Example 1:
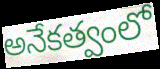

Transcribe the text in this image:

అనేకత్వంలో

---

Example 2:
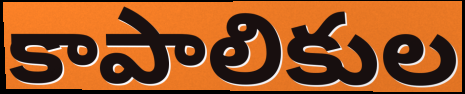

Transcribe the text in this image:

కాపాలికుల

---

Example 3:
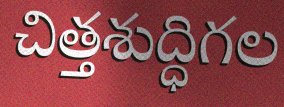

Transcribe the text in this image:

చిత్తశుద్ధిగల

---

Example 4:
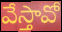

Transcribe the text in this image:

వేస్తావో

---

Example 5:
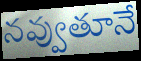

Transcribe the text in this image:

నవ్వుతూనే